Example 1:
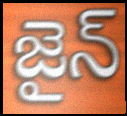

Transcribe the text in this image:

జైన్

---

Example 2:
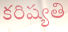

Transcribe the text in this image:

కరిష్యతి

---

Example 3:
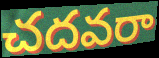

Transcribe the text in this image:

చదవరా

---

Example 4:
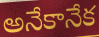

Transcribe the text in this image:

అనేకానేక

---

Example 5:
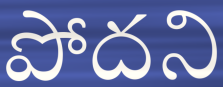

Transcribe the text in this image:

పోదని